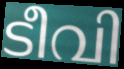
ടീവി